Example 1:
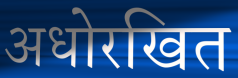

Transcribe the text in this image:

अधोरखित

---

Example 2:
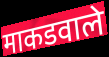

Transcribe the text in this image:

माकडवाले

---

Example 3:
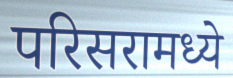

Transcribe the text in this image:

परिसरामध्ये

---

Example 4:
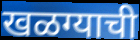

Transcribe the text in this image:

खळग्याची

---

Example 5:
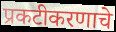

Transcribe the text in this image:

प्रकटीकरणाचे